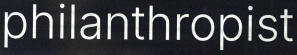
philanthropist